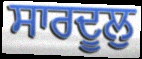
ਸਾਰਦੂਲੁ